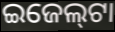
ଇଜେଲ୍‍ଟା